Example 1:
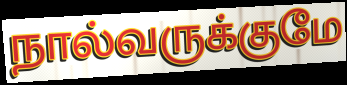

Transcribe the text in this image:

நால்வருக்குமே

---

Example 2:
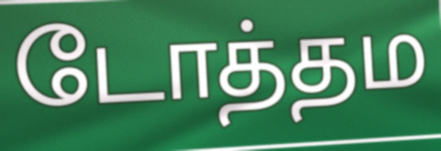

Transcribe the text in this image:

டோத்தம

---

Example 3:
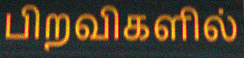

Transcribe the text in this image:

பிறவிகளில்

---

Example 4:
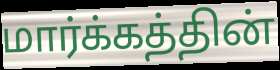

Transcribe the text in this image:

மார்க்கத்தின்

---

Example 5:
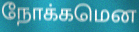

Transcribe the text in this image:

நோக்கமென